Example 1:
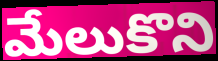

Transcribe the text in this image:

మేలుకొని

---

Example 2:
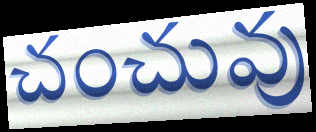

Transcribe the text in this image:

చంచువు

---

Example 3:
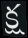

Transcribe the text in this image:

క్ష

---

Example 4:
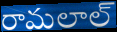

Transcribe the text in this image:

రామలాల్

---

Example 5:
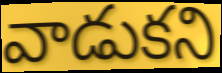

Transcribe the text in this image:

వాడుకని